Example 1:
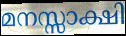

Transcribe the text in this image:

മനസ്സാക്ഷി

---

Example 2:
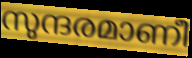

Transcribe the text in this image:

സുന്ദരമാണീ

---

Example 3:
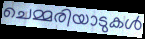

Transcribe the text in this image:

ചെമ്മരിയാടുകൾ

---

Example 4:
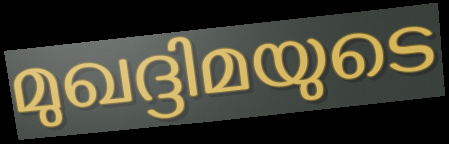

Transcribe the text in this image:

മുഖദ്ദിമയുടെ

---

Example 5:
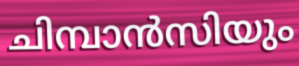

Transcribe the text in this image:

ചിമ്പാൻസിയും